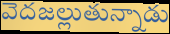
వెదజల్లుతున్నాడు